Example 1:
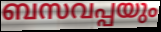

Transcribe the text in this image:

ബസവപ്പയും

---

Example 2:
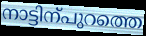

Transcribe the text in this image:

നാട്ടിന്പുറത്തെ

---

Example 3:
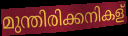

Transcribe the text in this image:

മുന്തിരിക്കനികള്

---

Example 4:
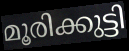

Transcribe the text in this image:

മൂരിക്കുട്ടി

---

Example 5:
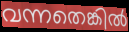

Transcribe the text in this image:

വന്നതെങ്കിൽ